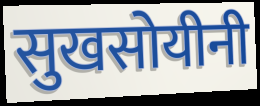
सुखसोयीनी